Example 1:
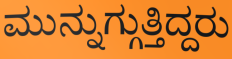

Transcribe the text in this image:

ಮುನ್ನುಗ್ಗುತ್ತಿದ್ದರು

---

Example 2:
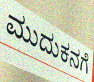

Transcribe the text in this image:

ಮುದುಕನಗೆ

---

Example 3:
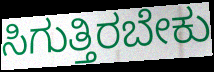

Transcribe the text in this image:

ಸಿಗುತ್ತಿರಬೇಕು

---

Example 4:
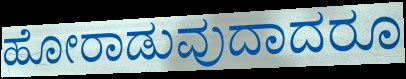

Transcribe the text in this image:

ಹೋರಾಡುವುದಾದರೂ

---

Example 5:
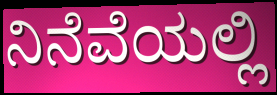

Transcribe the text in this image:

ನಿನೆವೆಯಲ್ಲಿ